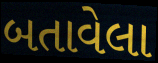
બતાવેલા